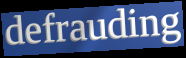
defrauding